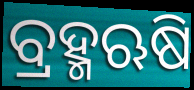
ବ୍ରହ୍ମଋଷି